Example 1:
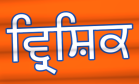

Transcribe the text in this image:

ਵ੍ਰਿਸ਼ਿਕ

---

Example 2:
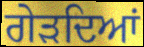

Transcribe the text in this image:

ਗੇੜਦਿਆਂ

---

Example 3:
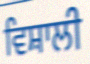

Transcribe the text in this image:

ਵਿਸ਼ਾਲੀ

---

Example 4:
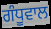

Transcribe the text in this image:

ਗੰਧੂਵਾਲ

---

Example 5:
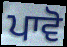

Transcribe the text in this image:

ਪਾਵੋ